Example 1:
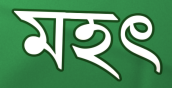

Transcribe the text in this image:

মহত্‍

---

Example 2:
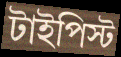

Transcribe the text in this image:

টাইপিস্ট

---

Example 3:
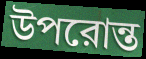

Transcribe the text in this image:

উপরোন্ত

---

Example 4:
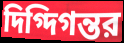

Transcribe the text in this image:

দিগ্দিগন্তর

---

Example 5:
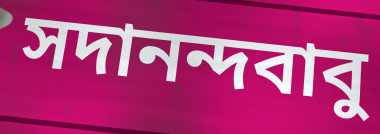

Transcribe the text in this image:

সদানন্দবাবু